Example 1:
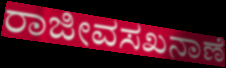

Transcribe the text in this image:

ರಾಜೀವಸಖನಾಣೆ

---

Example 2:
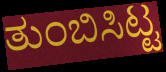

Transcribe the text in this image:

ತುಂಬಿಸಿಟ್ಟ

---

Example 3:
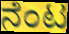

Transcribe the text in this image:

ನೆಂಟ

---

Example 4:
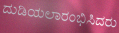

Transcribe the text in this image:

ದುಡಿಯಲಾರಂಭಿಸಿದರು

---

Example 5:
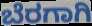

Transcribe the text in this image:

ಬೆರಗಾಗಿ